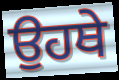
ਉਹਥੇ